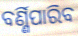
ବର୍ଣ୍ଣିପାରିବ